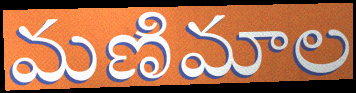
మణిమాల